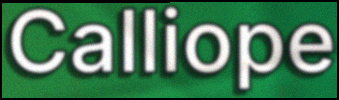
Calliope